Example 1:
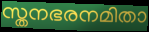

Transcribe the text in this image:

സ്തനഭരനമിതാ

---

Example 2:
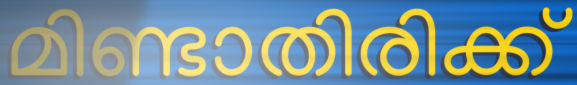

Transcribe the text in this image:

മിണ്ടാതിരിക്ക്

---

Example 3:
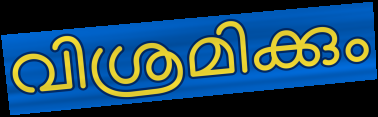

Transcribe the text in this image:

വിശ്രമിക്കും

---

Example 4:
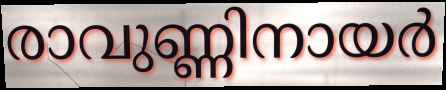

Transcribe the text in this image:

രാവുണ്ണിനായർ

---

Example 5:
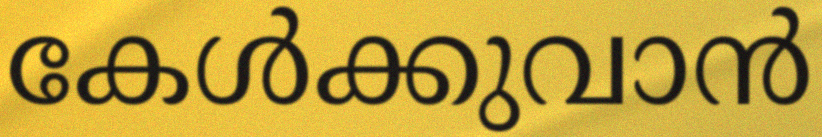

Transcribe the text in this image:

കേൾക്കുവാൻ